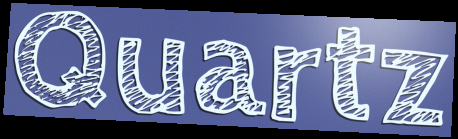
Quartz